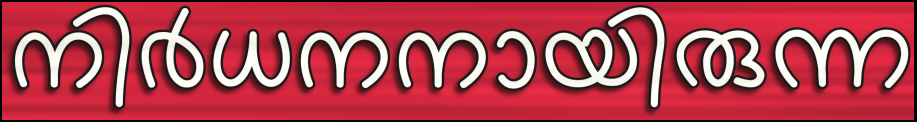
നിർധനനായിരുന്ന